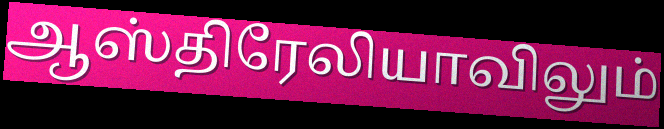
ஆஸ்திரேலியாவிலும்